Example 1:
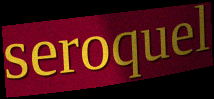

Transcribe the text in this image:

seroquel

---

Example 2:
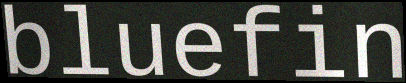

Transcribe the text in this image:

bluefin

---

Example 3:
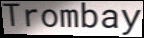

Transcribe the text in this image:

Trombay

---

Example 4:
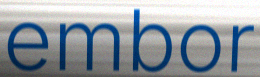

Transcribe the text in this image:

embor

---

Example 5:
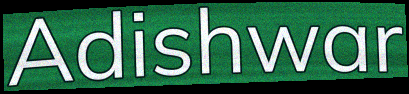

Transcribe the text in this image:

Adishwar